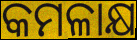
କମଳାକ୍ଷ